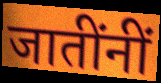
जातींनीं